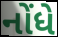
નોંધે